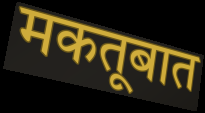
मकतूबात